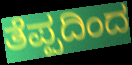
ತೆಪ್ಪದಿಂದ